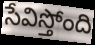
సేవిస్తోంది